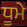
ਧੂਮੇ